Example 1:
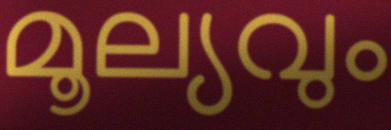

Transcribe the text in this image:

മൂല്യവും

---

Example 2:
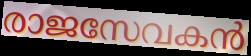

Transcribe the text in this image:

രാജസേവകൻ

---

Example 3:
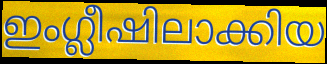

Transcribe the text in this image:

ഇംഗ്ലീഷിലാക്കിയ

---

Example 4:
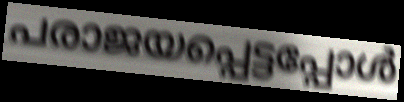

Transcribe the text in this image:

പരാജയപ്പെട്ടപ്പോൾ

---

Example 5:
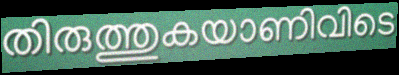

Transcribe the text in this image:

തിരുത്തുകയാണിവിടെ